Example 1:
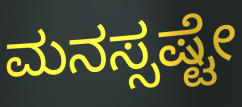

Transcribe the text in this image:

ಮನಸ್ಸಷ್ಟೇ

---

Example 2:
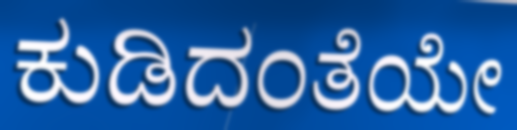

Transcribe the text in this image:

ಕುಡಿದಂತೆಯೇ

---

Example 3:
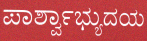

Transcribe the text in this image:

ಪಾರ್ಶ್ವಾಭ್ಯುದಯ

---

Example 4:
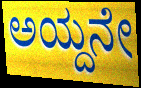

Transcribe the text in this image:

ಅಯ್ದನೇ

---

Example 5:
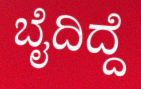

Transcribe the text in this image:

ಬೈದಿದ್ದೆ